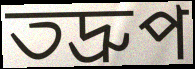
তদ্ৰুপ